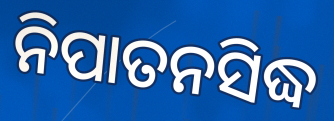
ନିପାତନସିଦ୍ଧ